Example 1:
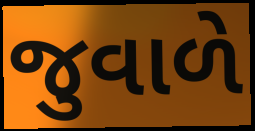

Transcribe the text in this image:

જુવાળે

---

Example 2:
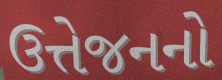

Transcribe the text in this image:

ઉત્તેજનનો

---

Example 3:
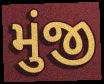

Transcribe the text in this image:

મુંજી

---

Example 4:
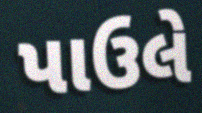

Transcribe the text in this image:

પાઉલે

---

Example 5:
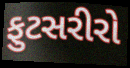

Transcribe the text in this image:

ફુટસરીરો